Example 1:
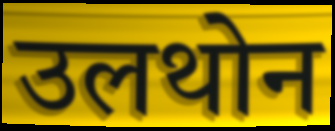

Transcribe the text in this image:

उलथोन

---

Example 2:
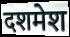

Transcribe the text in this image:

दशमेश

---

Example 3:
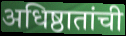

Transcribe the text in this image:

अधिष्ठातांची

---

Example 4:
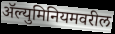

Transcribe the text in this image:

ॲल्युमिनियमवरील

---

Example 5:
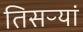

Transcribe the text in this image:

तिसऱ्यां